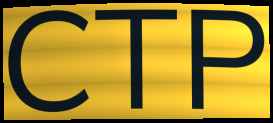
CTP